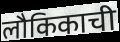
लौकिकाची